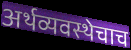
अर्थव्यवस्थेचाच